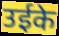
उईके